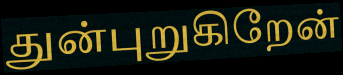
துன்புறுகிறேன்